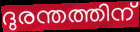
ദുരന്തത്തിന്